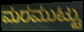
ಮರಮುಟ್ಟು